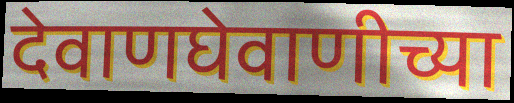
देवाणघेवाणीच्या